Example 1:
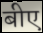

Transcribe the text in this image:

बीए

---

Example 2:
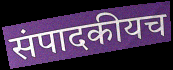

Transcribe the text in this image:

संपादकीयच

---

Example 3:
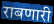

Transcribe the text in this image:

राबणारी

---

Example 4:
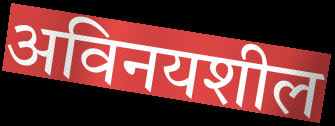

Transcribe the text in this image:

अविनयशील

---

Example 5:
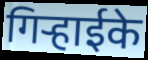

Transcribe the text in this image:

गिर्‍हाईके